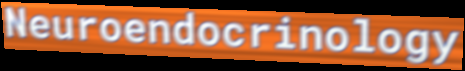
Neuroendocrinology